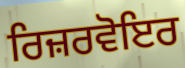
ਰਿਜ਼ਰਵੋਇਰ